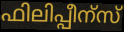
ഫിലിപ്പീന്സ്